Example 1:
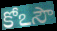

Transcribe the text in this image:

కోఽసౌ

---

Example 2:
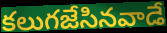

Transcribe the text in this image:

కలుగజేసినవాడే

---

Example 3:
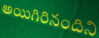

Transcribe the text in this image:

అయిగిరినందిని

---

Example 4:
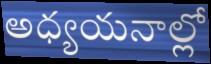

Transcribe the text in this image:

అధ్యయనాల్లో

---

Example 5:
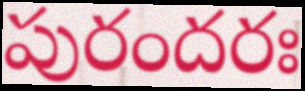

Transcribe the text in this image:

పురందరః